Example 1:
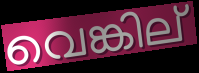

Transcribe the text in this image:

വെങ്കില്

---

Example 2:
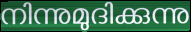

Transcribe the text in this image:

നിന്നുമുദിക്കുന്നു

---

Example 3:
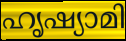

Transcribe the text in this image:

ഹൃഷ്യാമി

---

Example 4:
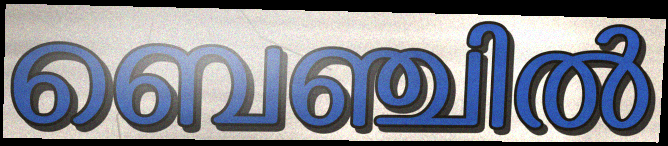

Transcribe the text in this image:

ബെഞ്ചിൽ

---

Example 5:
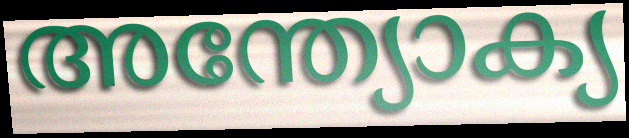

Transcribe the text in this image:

അന്ത്യോക്യ